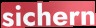
sichern